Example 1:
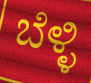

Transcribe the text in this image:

ಬೆಳ್ಳಿ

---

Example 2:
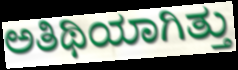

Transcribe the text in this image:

ಅತಿಥಿಯಾಗಿತ್ತು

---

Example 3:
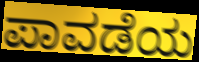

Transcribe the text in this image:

ಪಾವಡೆಯ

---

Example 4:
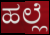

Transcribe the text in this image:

ಹಲ್ಲೆ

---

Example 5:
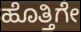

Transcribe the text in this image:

ಹೊತ್ತಿಗೇ